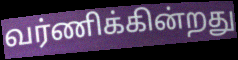
வர்ணிக்கின்றது